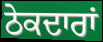
ਠੇਕਦਾਰਾਂ